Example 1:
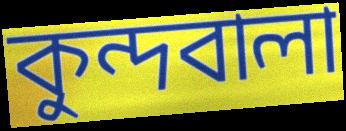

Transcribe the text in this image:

কুন্দবালা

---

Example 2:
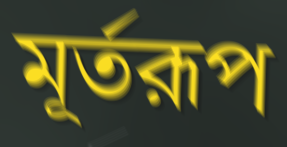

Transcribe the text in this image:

মূর্তরূপ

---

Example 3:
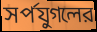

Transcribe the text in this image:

সর্পযুগলের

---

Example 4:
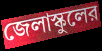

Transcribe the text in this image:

জেলাস্কুলের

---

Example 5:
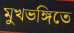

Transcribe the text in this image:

মুখভঙ্গিতে